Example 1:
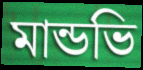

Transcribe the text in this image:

মান্ডভি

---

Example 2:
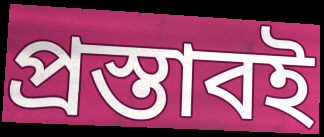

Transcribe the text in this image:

প্রস্তাবই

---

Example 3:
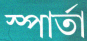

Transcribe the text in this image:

স্পার্তা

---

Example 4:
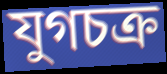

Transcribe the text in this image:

যুগচক্র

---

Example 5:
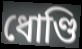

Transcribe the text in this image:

ধোণ্ডি